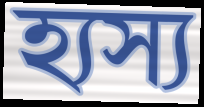
হ্যস্য